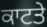
ਕਾਟਤੇ